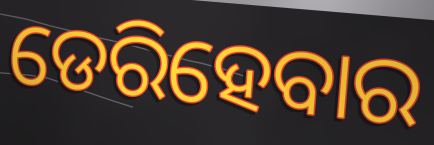
ଡେରିହେବାର